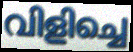
വിളിച്ചെ